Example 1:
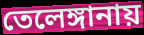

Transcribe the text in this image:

তেলেঙ্গানায়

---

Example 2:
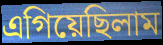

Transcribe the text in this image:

এগিয়েছিলাম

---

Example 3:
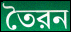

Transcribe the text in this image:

তৈরন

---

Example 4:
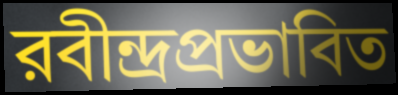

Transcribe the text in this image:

রবীন্দ্রপ্রভাবিত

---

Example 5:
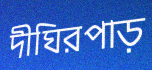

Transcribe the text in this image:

দীঘিরপাড়